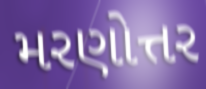
મરણોત્તર